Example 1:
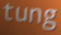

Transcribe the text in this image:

tung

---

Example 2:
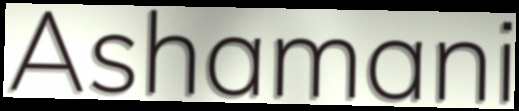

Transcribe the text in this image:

Ashamani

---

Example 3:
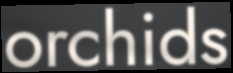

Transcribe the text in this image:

orchids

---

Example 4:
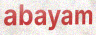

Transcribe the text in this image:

abayam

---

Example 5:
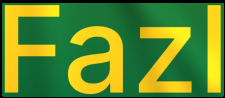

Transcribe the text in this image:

Fazl